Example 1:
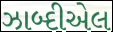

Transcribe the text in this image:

ઝાબ્દીએલ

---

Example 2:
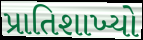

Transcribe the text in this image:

પ્રાતિશાખ્યો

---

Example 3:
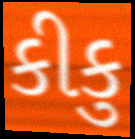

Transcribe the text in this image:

કીકુ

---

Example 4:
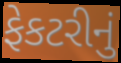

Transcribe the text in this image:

ફેકટરીનું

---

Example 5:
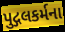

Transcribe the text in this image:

પુદ્ગલકર્મના